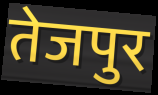
तेजपुर